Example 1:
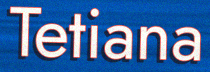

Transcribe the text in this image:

Tetiana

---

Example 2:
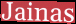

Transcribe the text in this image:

Jainas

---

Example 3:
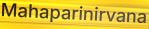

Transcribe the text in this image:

Mahaparinirvana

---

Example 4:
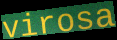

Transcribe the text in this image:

virosa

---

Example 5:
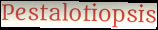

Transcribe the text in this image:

Pestalotiopsis